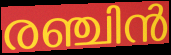
രഞ്ചിൻ